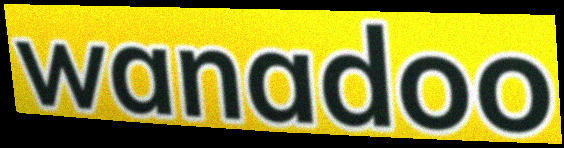
wanadoo